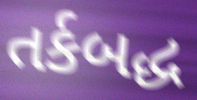
તર્કબદ્ધ